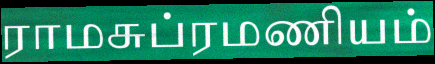
ராமசுப்ரமணியம்